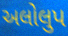
અલોલુપ